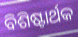
ବିଶିଷ୍ଟାର୍ଥକ